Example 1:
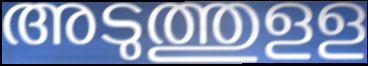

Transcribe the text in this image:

അടുത്തുളള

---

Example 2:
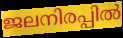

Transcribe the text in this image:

ജലനിരപ്പിൽ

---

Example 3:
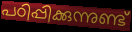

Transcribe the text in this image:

പഠിപ്പിക്കുന്നുണ്ട്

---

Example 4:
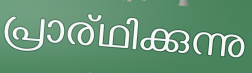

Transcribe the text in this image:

പ്രാര്ഥിക്കുന്നു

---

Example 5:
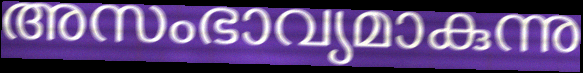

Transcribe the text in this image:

അസംഭാവ്യമാകുന്നു